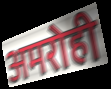
अमरोही